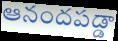
ఆనందపడ్డా